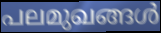
പലമുഖങ്ങൾ